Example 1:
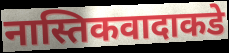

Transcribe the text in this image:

नास्तिकवादाकडे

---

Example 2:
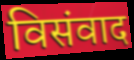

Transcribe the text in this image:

विसंवाद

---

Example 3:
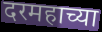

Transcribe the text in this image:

दरमहाच्या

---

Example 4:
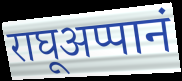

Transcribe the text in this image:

राघूअप्पानं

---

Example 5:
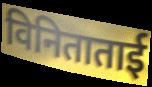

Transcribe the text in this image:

विनिताताई